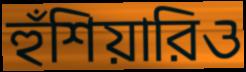
হুঁশিয়ারিও